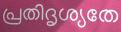
പ്രതിദൃശ്യതേ